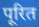
पूरित